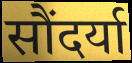
सौंदर्या